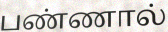
பண்ணால்